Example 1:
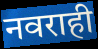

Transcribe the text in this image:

नवराही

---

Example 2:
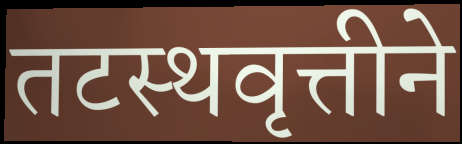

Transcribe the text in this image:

तटस्थवृत्तीने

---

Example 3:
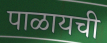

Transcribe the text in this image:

पाळायची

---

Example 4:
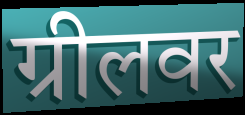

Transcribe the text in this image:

ग्रीलवर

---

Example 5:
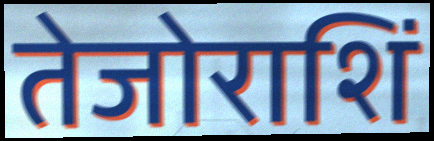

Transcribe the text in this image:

तेजोराशिं